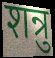
शन्रु